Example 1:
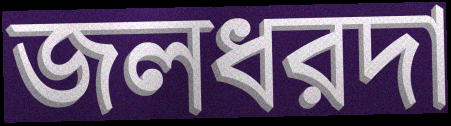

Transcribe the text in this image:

জলধরদা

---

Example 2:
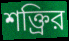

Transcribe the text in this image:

শক্ত্রির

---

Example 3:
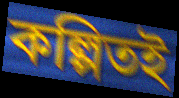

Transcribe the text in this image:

কল্পিতই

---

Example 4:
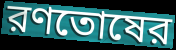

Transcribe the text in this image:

রণতোষের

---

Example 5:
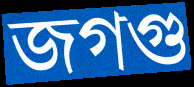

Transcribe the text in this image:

জগগু